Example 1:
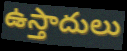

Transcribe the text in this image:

ఉస్తాదులు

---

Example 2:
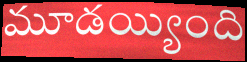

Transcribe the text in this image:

మూడయ్యింది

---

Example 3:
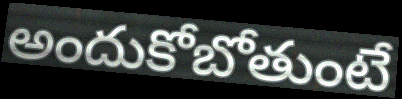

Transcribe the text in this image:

అందుకోబోతుంటే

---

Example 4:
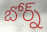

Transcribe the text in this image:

బోర్న్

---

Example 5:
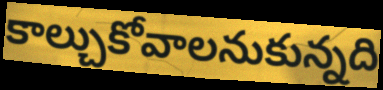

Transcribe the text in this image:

కాల్చుకోవాలనుకున్నది